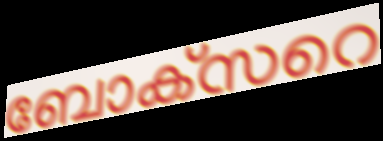
ബോക്‌സറെ